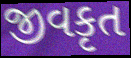
જીવકૃત